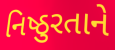
નિષ્ઠુરતાને